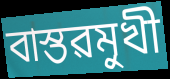
বাস্তৱমুখী